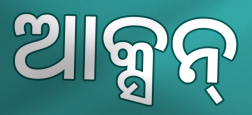
ଆକ୍ସନ୍